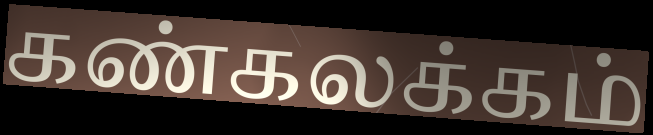
கண்கலக்கம்